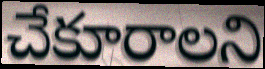
చేకూరాలని